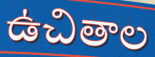
ఉచితాల